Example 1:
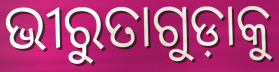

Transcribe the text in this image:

ଭୀରୁତାଗୁଡ଼ାକୁ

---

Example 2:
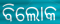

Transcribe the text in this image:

ବିଲୋକ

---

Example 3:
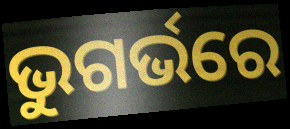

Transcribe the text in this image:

ଭୁଗର୍ଭରେ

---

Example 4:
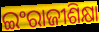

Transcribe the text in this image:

ଇଂରାଜୀଶିକ୍ଷା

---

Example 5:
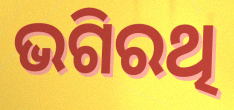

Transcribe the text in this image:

ଭଗିରଥି